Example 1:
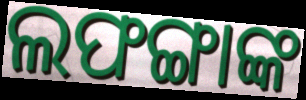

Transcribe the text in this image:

ଲଫଙ୍ଗାଙ୍କ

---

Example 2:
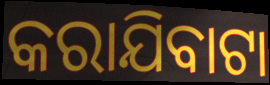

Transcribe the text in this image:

କରାଯିବାଟା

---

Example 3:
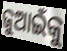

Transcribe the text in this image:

ଜୁଆଇଁକୁ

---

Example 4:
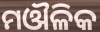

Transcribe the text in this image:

ମଔଳିକ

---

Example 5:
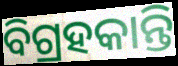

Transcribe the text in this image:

ବିଗ୍ରହକାନ୍ତି